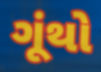
ગૂંથો